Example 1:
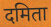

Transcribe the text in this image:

दमिता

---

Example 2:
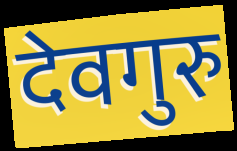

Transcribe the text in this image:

देवगुरु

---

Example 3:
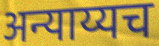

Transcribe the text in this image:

अन्याय्यच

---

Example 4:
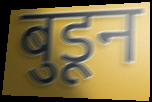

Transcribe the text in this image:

बुडून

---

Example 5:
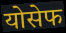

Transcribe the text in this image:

योसेफ